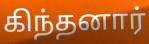
கிந்தனார்